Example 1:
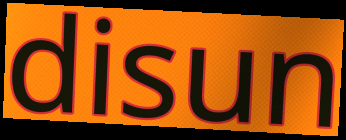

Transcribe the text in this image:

disun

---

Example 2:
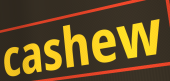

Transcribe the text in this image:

cashew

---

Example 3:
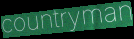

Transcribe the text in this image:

countryman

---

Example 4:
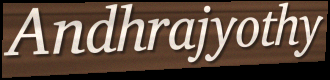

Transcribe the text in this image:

Andhrajyothy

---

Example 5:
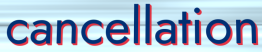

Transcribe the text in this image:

cancellation